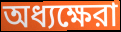
অধ্যক্ষেরা